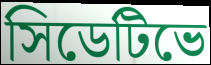
সিডেটিভে